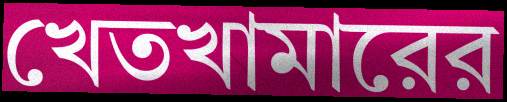
খেতখামারের